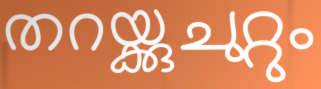
തറയ്ക്കുചുറ്റും